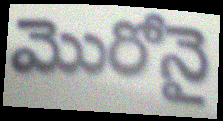
మొరోనై